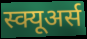
स्क्यूअर्स